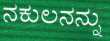
ನಕುಲನನ್ನು